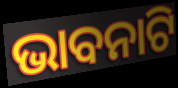
ଭାବନାଟି